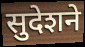
सुदेशने